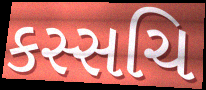
કસ્સચિ